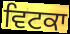
ਵਿਟਕਾ